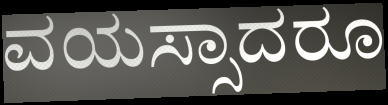
ವಯಸ್ಸಾದರೂ